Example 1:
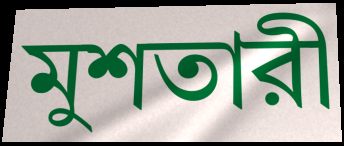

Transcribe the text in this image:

মুশতারী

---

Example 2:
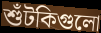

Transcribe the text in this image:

শুঁটকিগুলো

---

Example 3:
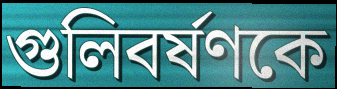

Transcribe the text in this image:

গুলিবর্ষণকে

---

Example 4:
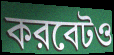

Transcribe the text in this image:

করবেটও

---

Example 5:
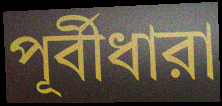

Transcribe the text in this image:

পূর্বীধারা